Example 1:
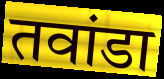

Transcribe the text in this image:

तवांडा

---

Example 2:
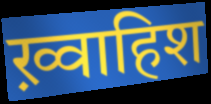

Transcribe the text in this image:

ख़्वाहिश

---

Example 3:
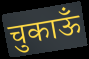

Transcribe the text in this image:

चुकाऊँ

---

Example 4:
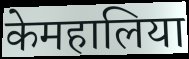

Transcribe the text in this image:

केमहालिया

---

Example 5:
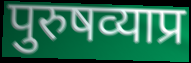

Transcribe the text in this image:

पुरुषव्याप्र